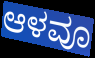
ಆಳವೂ